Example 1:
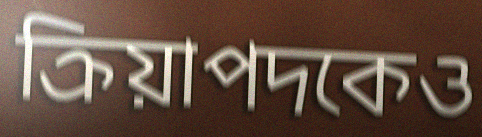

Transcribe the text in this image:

ক্রিয়াপদকেও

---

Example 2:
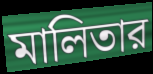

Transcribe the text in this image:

মালিতার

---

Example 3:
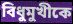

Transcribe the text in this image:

বিধুমুখীকে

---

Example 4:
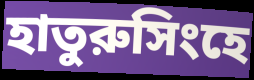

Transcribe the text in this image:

হাতুরুসিংহে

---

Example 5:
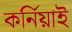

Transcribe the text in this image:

কর্নিয়াই